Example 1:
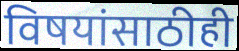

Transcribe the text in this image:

विषयांसाठीही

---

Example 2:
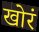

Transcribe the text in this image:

खोरं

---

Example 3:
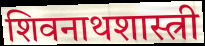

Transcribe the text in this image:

शिवनाथशास्त्री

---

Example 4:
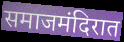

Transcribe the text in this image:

समाजमंदिरात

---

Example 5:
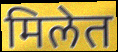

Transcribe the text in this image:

मिलेत